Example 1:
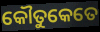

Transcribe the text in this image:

କୌତୁକେତେ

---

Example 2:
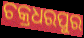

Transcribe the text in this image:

ଚକ୍ରଧରପୁର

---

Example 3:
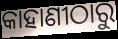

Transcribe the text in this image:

କାହାଣୀଠାରୁ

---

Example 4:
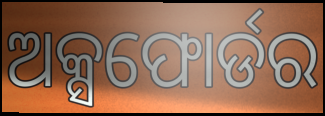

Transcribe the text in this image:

ଅକ୍ସଫୋର୍ଡର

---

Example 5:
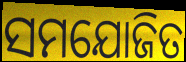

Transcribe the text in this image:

ସମଯୋଜିତ